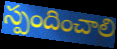
స్పందించాలి